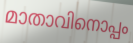
മാതാവിനൊപ്പം